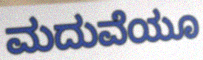
ಮದುವೆಯೂ